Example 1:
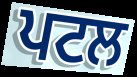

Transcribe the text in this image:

ਪਟਲ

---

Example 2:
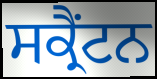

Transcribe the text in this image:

ਸਕ੍ਰੈਂਟਨ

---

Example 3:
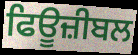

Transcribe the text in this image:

ਫਿਊਜ਼ੀਬਲ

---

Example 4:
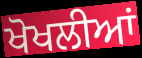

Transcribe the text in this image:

ਖੋਖਲੀਆਂ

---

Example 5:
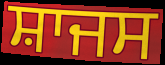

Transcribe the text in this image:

ਸ਼ਾਜਸ